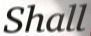
Shall